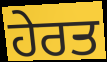
ਹੇਰਤ